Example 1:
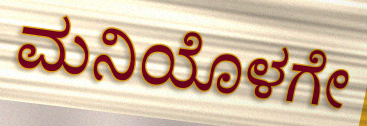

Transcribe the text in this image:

ಮನಿಯೊಳಗೇ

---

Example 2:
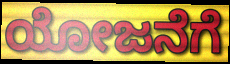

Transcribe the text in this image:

ಯೋಜನೆಗೆ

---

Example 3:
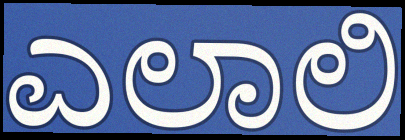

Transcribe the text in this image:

ಎಲಾಲಿ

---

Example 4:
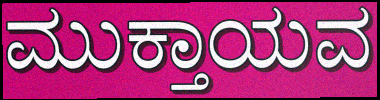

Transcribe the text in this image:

ಮುಕ್ತಾಯವ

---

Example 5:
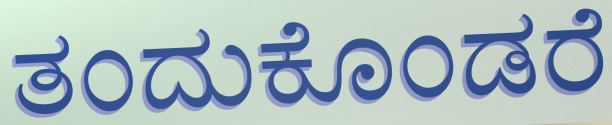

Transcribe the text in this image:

ತಂದುಕೊಂಡರೆ